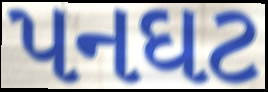
પનઘટ